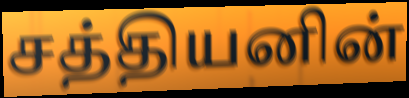
சத்தியனின்